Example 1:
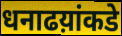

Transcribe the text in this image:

धनाढय़ांकडे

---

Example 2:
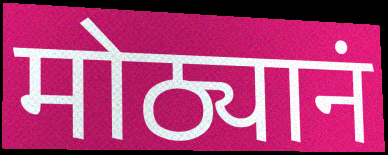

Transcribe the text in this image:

मोठ्यानं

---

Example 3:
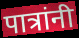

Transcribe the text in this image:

पात्रांनी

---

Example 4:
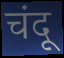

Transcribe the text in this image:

चंदू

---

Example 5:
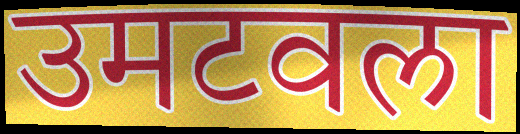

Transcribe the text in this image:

उमटवला